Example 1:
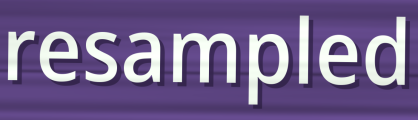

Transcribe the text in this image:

resampled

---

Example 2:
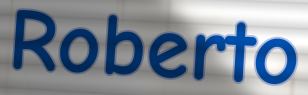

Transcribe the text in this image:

Roberto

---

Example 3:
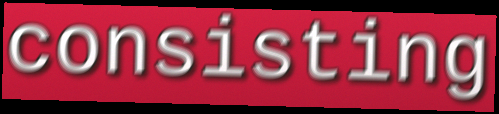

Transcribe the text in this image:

consisting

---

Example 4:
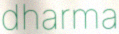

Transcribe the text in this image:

dharma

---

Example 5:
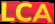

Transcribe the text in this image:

LCA